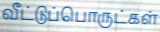
வீட்டுப்பொருட்கள்